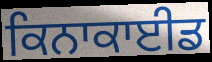
ਕਿਨਾਕਾਈਡ